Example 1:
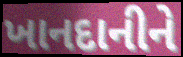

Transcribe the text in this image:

ખાનદાનીને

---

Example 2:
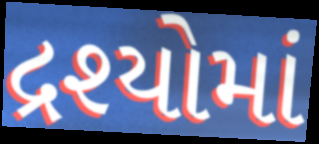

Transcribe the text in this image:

દ્રશ્યોમાં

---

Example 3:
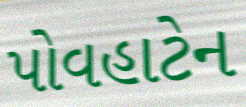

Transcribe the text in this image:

પોવહાટેન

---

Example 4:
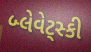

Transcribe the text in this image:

બ્લેવેટ્સ્કી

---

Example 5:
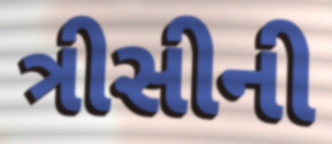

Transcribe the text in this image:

ત્રીસીની